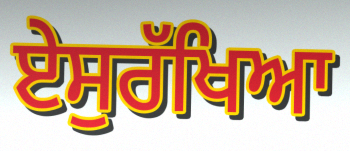
ਏਸੁਰੱਖਿਆ